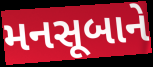
મનસૂબાને